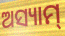
ଅସ୍ୟାମ୍